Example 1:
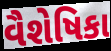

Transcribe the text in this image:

વૈશેષિકા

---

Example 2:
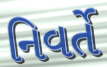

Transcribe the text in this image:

નિવર્તે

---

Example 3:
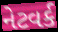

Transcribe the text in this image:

નેટવર્ક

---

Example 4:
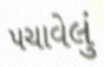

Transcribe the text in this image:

પચાવેલું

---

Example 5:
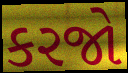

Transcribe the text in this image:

કરજો